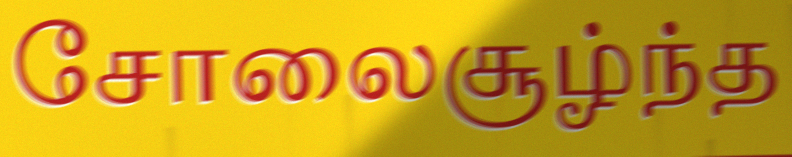
சோலைசூழ்ந்த